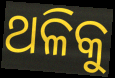
ଥଳିକୁ